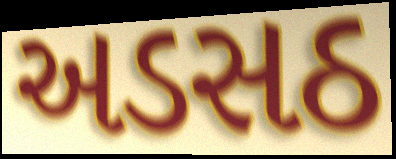
અડસઠ